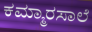
ಕಮ್ಮಾರಸಾಲೆ